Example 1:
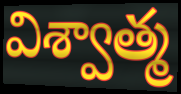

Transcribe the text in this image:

విశ్వాత్మ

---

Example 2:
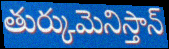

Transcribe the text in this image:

తుర్కుమెనిస్తాన్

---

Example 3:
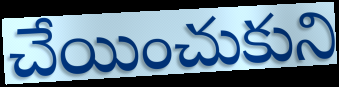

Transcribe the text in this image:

చేయించుకుని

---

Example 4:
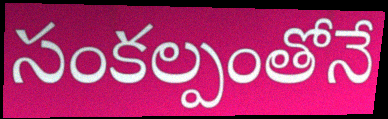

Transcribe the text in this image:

సంకల్పంతోనే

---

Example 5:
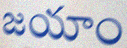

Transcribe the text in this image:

జయాం